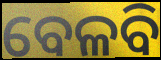
ବେଳବି